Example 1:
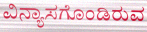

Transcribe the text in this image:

ವಿನ್ಯಾಸಗೊಂಡಿರುವ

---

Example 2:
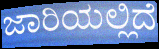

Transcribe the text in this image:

ಜಾರಿಯಲ್ಲಿದೆ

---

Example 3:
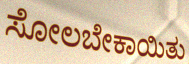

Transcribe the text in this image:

ಸೋಲಬೇಕಾಯಿತು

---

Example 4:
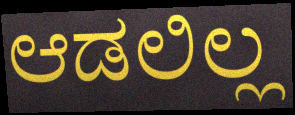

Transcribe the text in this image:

ಆಡಲಿಲ್ಲ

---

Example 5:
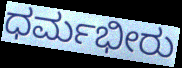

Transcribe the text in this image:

ಧರ್ಮಭೀರು